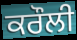
ਕਰੌਲੀ